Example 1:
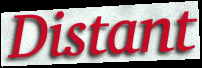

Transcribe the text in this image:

Distant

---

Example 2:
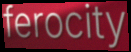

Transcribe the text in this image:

ferocity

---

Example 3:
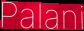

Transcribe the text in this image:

Palani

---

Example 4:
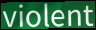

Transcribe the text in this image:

violent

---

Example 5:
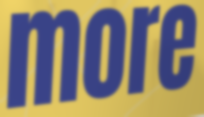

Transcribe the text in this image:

more